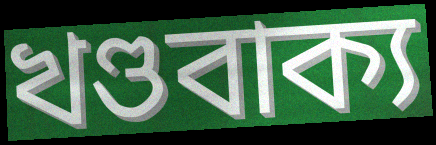
খণ্ডবাক্য